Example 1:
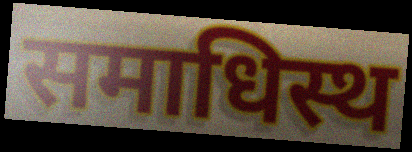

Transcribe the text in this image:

समाधिस्थ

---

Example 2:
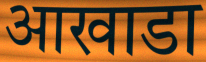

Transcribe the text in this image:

आखाडा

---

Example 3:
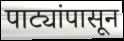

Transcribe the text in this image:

पाट्यांपासून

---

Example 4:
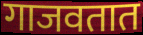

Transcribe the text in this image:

गाजवतात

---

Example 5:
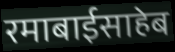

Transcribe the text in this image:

रमाबाईसाहेब